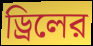
ড্রিলের